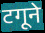
टगूने